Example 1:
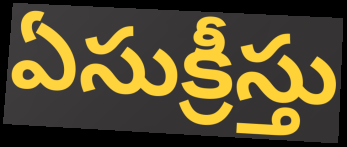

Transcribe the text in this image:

ఏసుక్రీస్తు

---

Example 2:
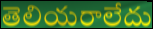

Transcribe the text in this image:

తెలియరాలేదు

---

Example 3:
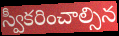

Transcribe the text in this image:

స్వీకరించాల్సిన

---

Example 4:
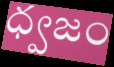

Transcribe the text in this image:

ధ్వజం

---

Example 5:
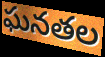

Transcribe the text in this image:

ఘనతల